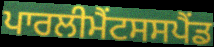
ਪਾਰਲੀਮੈਂਟਸਸਪੈਂਡ